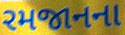
રમજાનના